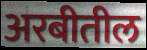
अरबीतील